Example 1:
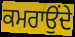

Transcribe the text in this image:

ਕਮਰਾਉਂਦੇ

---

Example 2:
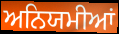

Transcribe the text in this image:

ਅਨਿਯਮੀਆਂ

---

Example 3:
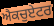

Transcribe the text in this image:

ਐਕਚੁਏਟਰ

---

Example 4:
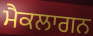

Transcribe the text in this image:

ਮੈਕਲਾਗਨ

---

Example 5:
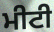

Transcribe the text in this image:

ਮੀਟੀ